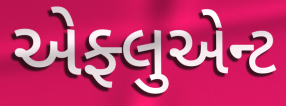
એફ્લુએન્ટ